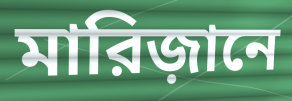
মারিজ়ানে